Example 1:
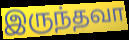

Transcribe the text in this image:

இருந்தவா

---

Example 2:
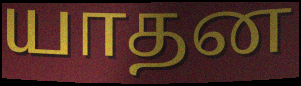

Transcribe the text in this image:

யாதன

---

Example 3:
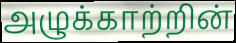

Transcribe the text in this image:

அழுக்காற்றின்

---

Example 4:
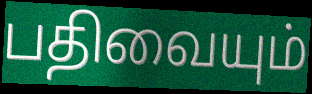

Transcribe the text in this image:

பதிவையும்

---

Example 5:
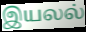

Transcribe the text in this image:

இயலல்